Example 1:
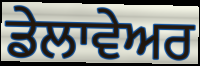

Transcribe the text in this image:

ਡੇਲਾਵੇਅਰ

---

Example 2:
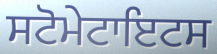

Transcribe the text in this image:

ਸਟੋਮੇਟਾਇਟਸ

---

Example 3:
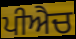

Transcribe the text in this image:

ਪੀਐਚ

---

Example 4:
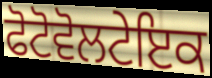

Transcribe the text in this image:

ਫੋਟੋਵੋਲਟੇਇਕ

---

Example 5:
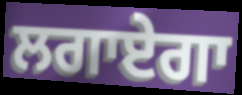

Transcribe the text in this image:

ਲਗਾਏਗਾ